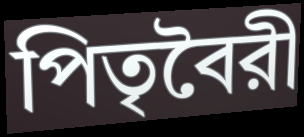
পিতৃবৈরী